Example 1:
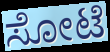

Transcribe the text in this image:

ಸೋಟೆ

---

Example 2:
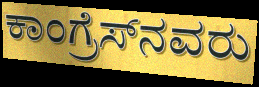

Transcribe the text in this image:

ಕಾಂಗ್ರೆಸ್‌ನವರು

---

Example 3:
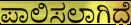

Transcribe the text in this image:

ಪಾಲಿಸಲಾಗಿದೆ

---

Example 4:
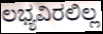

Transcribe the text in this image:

ಲಭ್ಯವಿರಲಿಲ್ಲ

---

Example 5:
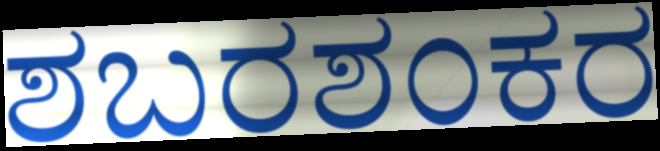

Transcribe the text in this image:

ಶಬರಶಂಕರ